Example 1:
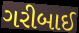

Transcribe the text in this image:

ગરીબાઈ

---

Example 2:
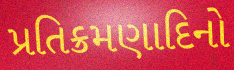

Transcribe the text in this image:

પ્રતિક્રમણાદિનો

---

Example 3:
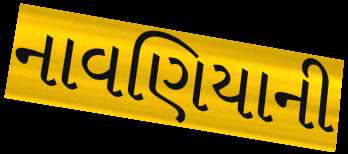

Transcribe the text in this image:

નાવણિયાની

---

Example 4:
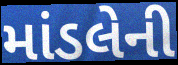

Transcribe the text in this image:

માંડલેની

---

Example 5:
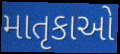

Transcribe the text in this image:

માતૃકાઓ